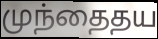
முந்தைதய